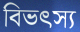
বিভৎস্য